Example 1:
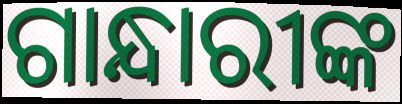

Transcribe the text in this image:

ଗାନ୍ଧାରୀଙ୍କ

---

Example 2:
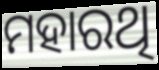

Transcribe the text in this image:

ମହାରଥି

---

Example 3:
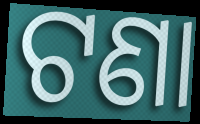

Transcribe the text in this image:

ଟଣା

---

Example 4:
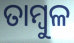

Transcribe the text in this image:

ତାମ୍ୱୁଳ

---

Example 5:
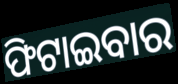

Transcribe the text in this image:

ଫିଟାଇବାର